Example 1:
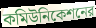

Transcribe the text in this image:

কমিউনিকেশনের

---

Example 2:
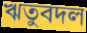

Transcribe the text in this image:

ঋতুবদল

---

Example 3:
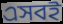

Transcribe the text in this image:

এসবই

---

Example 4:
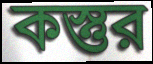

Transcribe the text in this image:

কস্তুর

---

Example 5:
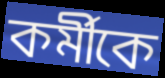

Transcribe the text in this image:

কর্মীকে